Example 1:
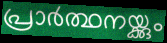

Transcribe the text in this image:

പ്രാർത്ഥനയ്ക്കും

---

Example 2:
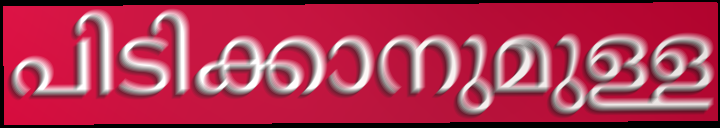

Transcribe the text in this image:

പിടിക്കാനുമുള്ള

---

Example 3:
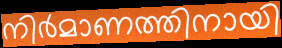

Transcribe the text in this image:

നിർമാണത്തിനായി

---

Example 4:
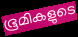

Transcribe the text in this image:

ഭൂമികളുടെ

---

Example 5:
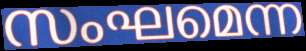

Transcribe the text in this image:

സംഘമെന്ന